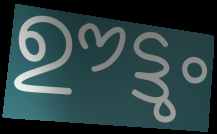
ഊട്ടും